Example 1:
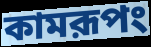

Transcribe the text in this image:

কামরূপং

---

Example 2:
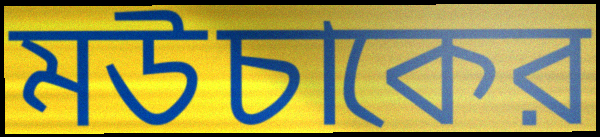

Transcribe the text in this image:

মউচাকের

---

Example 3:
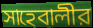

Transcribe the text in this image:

সাহেবালীর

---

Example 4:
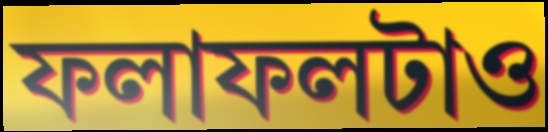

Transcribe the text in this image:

ফলাফলটাও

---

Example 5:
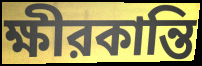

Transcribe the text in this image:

ক্ষীরকান্তি